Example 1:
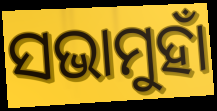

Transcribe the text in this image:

ସଭାମୁହାଁ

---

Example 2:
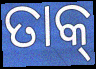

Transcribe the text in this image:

ତାକ୍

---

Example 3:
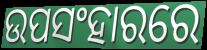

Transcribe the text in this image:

ଉପସଂହାରରେ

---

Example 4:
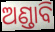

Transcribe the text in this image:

ଅଣ୍ଡାବି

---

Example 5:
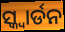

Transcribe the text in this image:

ସ୍କ୍ବାର୍ଡନ